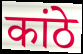
कांठे